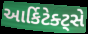
આર્કિટેક્ટ્સે